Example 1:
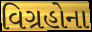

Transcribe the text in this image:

વિગ્રહોના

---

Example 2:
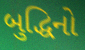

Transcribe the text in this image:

બુદ્ધિનો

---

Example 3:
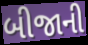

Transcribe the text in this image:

બીજાની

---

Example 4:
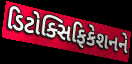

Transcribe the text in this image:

ડિટોક્સિફિકેશનને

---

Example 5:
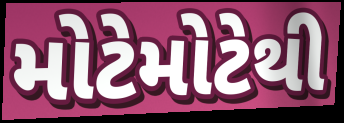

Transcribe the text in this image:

મોટેમોટેથી